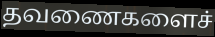
தவணைகளைச்